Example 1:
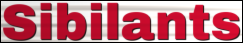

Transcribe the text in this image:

Sibilants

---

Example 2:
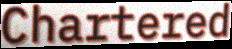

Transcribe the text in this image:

Chartered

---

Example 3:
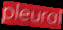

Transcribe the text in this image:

pleural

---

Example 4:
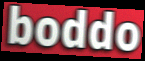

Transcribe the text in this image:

boddo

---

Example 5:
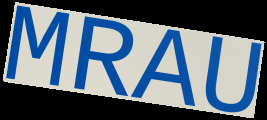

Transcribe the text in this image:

MRAU